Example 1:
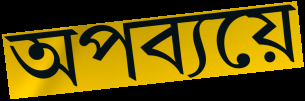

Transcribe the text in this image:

অপব্যয়ে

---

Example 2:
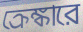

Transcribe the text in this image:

ক্রেঙ্কারে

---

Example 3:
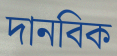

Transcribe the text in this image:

দানবিক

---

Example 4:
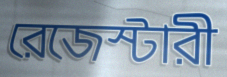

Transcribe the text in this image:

রেজেস্টারী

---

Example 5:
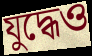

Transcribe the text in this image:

যুদ্ধেও